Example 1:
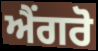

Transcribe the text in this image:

ਐਂਗਰੋ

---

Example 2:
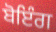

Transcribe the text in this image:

ਬੋਇੰਗ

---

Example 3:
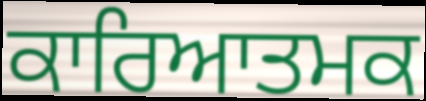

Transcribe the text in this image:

ਕਾਰਿਆਤਮਕ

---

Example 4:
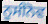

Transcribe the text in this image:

ਨੂਸੀਨੋਵ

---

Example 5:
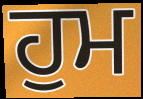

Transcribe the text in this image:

ਹੁਮ